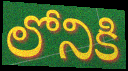
లోనికి